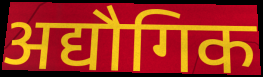
अद्यौगिक